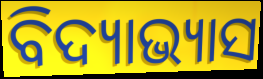
ବିଦ୍ୟାଭ୍ୟାସ